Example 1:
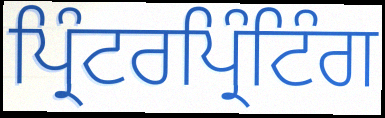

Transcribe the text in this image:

ਪ੍ਰਿੰਟਰਪ੍ਰਿੰਟਿੰਗ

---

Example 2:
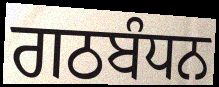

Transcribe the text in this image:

ਗਠਬੰਧਨ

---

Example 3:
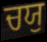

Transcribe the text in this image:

ਚਯੁ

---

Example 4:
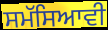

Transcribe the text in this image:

ਸਮੱਸਿਆਵੀ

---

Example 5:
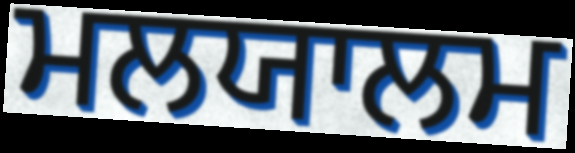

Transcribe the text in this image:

ਮਲਯਾਲਮ